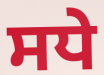
ਸਧੇ